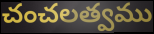
చంచలత్వము